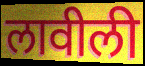
लावीली